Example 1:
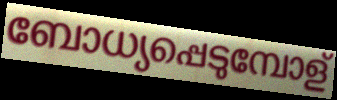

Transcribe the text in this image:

ബോധ്യപ്പെടുമ്പോള്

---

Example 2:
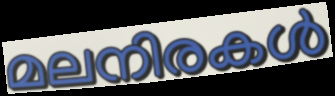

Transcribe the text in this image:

മലനിരകൾ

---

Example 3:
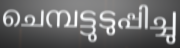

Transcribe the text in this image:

ചെമ്പട്ടുടുപ്പിച്ചു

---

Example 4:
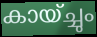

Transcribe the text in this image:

കായ്ച്ചും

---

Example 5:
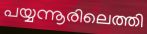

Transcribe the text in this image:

പയ്യന്നൂരിലെത്തി